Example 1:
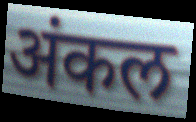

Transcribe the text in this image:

अंकल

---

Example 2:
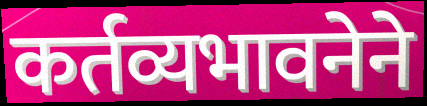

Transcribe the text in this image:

कर्तव्यभावनेने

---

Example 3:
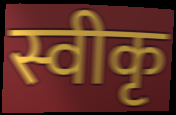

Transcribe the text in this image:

स्वीकृ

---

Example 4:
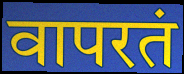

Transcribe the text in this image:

वापरतं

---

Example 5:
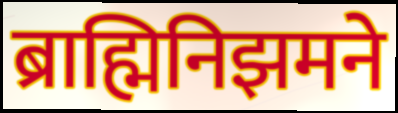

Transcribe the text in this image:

ब्राह्मिनिझमने